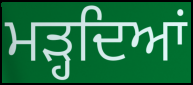
ਮੜ੍ਹਦਿਆਂ